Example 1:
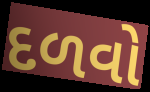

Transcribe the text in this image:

દળવો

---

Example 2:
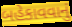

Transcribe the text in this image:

બહેકાવવાનું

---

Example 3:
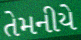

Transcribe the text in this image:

તેમનીયે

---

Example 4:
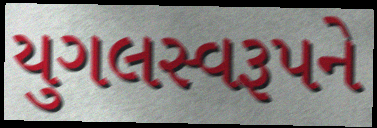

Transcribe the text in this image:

યુગલસ્વરૂપને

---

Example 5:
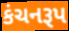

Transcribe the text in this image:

કંચનરૂપ